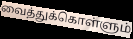
வைத்துக்கொள்ளும்